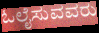
ಓಲೈಸುವವರು